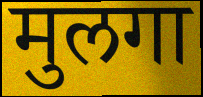
मुलगा